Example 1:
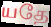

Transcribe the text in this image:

யதே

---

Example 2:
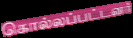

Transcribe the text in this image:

கொல்லப்பட்டனர்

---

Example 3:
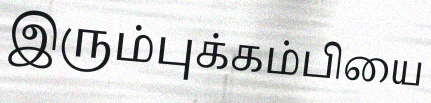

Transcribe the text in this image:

இரும்புக்கம்பியை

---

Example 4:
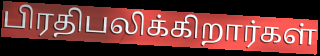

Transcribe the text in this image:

பிரதிபலிக்கிறார்கள்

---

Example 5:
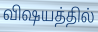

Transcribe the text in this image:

விஷயத்தில்